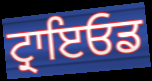
ਟ੍ਰਾਇਓਡ